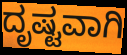
ದೃಷ್ಟವಾಗಿ